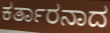
ಕರ್ತಾರನಾದ